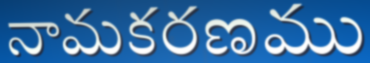
నామకరణము